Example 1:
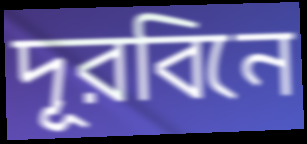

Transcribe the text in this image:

দূরবিনে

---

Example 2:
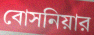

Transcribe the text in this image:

বোসনিয়ার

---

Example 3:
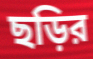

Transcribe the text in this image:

ছড়ির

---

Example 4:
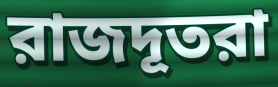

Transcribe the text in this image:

রাজদূতরা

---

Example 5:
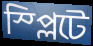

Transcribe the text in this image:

স্প্লিটে